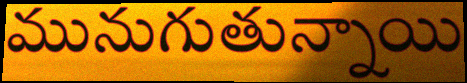
మునుగుతున్నాయి